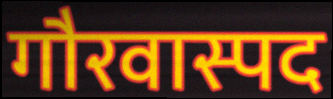
गौरवास्पद